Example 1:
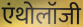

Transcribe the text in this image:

एंथोलॉजी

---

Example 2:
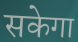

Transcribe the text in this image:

सकेगा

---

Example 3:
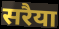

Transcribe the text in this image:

सरैया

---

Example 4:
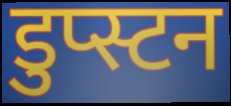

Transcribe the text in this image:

डुप्स्टन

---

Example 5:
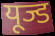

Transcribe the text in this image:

यूज्ड